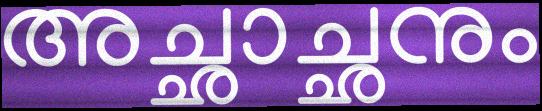
അച്ഛാച്ഛനും